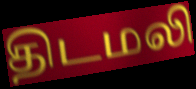
திடமலி